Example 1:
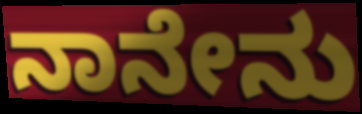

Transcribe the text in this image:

ನಾನೇನು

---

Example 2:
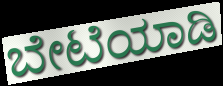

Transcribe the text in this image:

ಬೇಟೆಯಾಡಿ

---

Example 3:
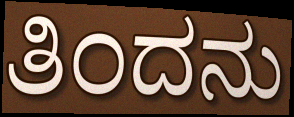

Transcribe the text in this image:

ತಿಂದನು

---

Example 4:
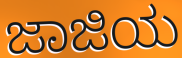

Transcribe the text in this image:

ಜಾಜಿಯ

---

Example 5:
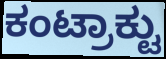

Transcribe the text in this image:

ಕಂಟ್ರಾಕ್ಟು